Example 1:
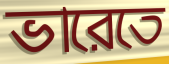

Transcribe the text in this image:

ভারেতে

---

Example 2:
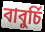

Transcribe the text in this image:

বাবুর্চি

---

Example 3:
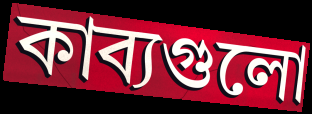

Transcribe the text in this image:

কাব্যগুলো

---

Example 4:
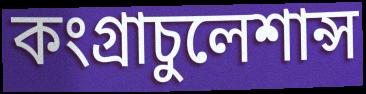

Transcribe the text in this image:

কংগ্রাচুলেশান্স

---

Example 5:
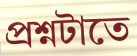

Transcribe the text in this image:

প্রশ্নটাতে